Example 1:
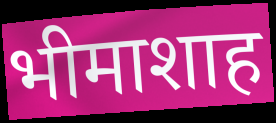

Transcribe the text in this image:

भीमाशाह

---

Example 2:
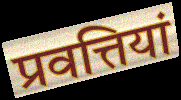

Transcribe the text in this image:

प्रवत्तियां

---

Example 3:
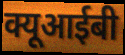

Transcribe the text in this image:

क्यूआईबी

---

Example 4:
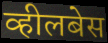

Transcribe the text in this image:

व्हीलबेस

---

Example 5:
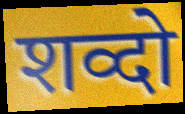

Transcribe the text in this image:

शव्दो